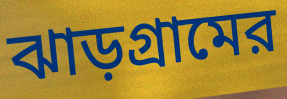
ঝাড়গ্রামের